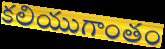
కలియుగాంతం